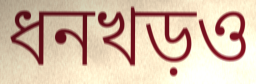
ধনখড়ও